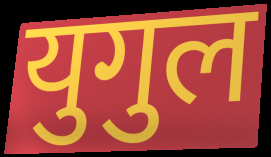
युगुल